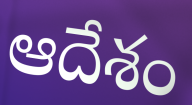
ఆదేశం